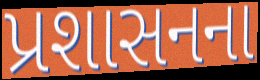
પ્રશાસનના